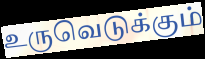
உருவெடுக்கும்